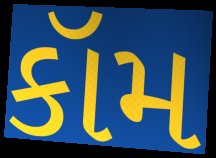
કૉમ